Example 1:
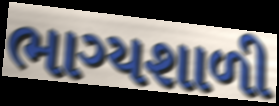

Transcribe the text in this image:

ભાગ્યશાળી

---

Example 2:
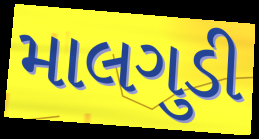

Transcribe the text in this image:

માલગુડી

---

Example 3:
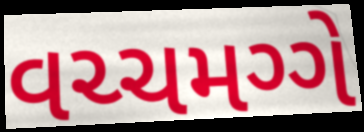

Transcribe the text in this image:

વચ્ચમગ્ગે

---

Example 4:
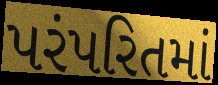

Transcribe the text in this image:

પરંપરિતમાં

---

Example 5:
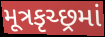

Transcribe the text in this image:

મૂત્રકૃચ્છ્રમાં